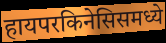
हायपरकिनेसिसमध्ये